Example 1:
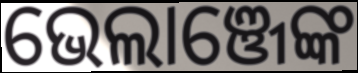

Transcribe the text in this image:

ଭେଲାଞ୍ଜେଙ୍କ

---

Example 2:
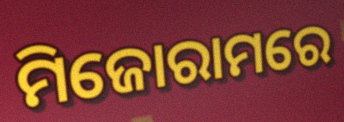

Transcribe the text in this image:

ମିଜୋରାମରେ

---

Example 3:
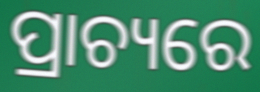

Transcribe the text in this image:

ପ୍ରାଚ୍ୟରେ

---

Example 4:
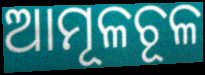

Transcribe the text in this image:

ଆମୂଳଚୂଳ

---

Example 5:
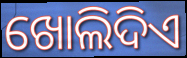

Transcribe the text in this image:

ଖୋଲିଦିଏ